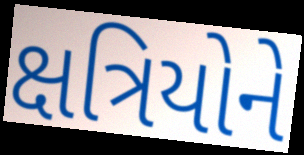
ક્ષત્રિયોને